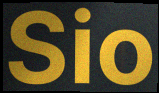
Sio